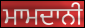
ਮਾਮਦਾਨੀ